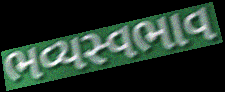
ભવ્યસ્વભાવ